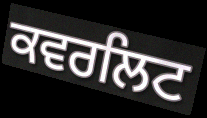
ਕਵਰਲਿਟ